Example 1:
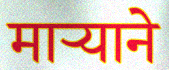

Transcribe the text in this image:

मार्‍याने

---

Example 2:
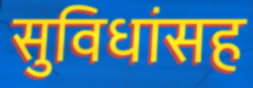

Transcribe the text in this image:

सुविधांसह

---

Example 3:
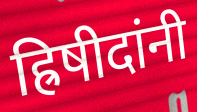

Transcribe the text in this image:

ह्रिषीदांनी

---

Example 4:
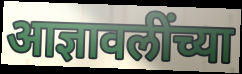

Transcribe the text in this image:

आज्ञावलींच्या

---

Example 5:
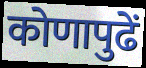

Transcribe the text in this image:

कोणापुढें